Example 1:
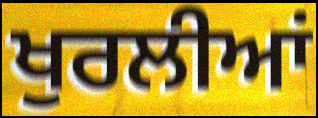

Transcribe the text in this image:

ਖੁਰਲੀਆਂ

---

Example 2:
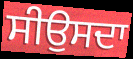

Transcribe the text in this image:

ਸੀਉਸਦਾ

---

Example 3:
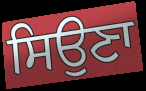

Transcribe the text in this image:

ਸਿਉਣਾ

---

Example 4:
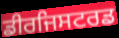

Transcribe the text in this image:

ਡੀਰਜਿਸਟਰਡ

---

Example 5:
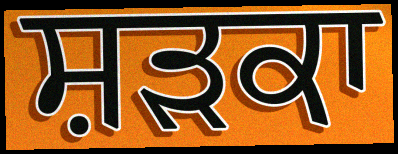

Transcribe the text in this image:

ਸ਼ੜਕਾ